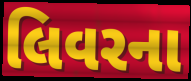
લિવરના